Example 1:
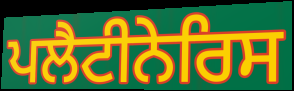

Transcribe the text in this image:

ਪਲੈਟੀਨੇਰਿਸ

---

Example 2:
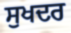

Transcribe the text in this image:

ਸੁਖਦਰ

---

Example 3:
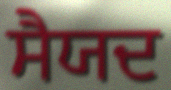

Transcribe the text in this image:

ਸੈਯਦ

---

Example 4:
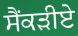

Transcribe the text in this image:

ਸੈਂਕੜੀਏ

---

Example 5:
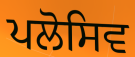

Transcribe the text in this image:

ਪਲੋਸਿਵ